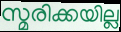
സ്മരിക്കയില്ല